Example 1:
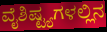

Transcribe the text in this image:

ವೈಶಿಷ್ಟ್ಯಗಳಲ್ಲಿನ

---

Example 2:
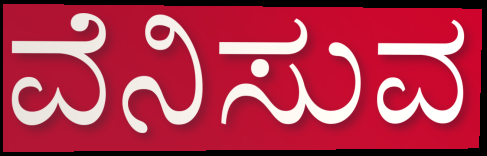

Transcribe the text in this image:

ವೆನಿಸುವ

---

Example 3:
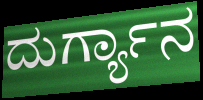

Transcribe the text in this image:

ದುರ್ಗ್ಯಾನ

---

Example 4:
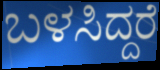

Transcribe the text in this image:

ಬಳಸಿದ್ದರೆ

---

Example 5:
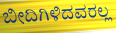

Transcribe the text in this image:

ಬೀದಿಗಿಳಿದವರಲ್ಲ